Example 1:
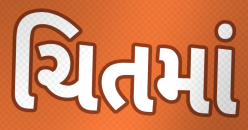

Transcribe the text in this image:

ચિતમાં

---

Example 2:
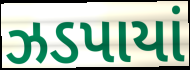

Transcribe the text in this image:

ઝડપાયાં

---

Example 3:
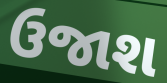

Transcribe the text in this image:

ઉજાશ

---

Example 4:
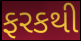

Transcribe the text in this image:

ફરકથી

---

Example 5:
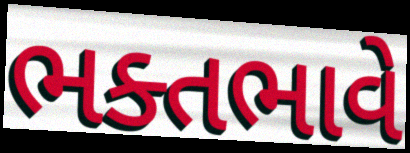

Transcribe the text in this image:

ભક્તભાવે